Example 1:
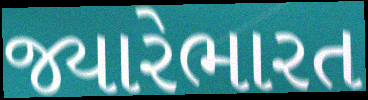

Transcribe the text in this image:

જ્યારેભારત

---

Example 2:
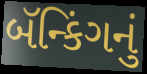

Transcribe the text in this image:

બૅન્કિંગનું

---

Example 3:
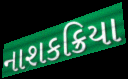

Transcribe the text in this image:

નાશકક્રિયા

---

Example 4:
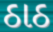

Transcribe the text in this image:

ઠાઠ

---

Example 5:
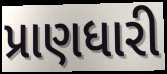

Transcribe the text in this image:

પ્રાણધારી